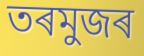
তৰমুজৰ